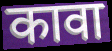
कावा